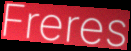
Freres